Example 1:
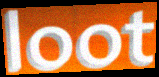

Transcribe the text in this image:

loot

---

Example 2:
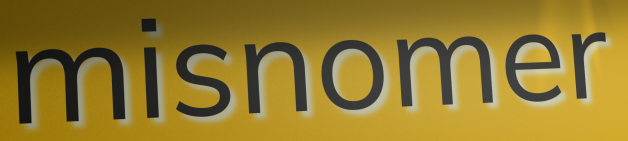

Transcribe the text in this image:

misnomer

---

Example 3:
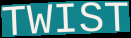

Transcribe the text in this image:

TWIST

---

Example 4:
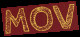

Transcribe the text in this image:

MOV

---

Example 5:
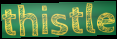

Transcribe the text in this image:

thistle